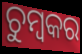
ଚୁମ୍ବକର